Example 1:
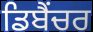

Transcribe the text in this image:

ਡਿਬੈਂਚਰ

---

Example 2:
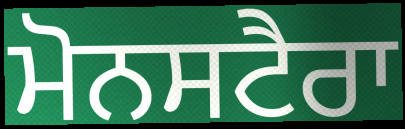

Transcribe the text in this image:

ਮੋਨਸਟੈਰਾ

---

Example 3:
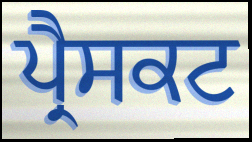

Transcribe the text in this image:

ਪ੍ਰੈਸਕਟ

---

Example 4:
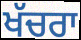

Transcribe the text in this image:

ਖੱਚਰਾ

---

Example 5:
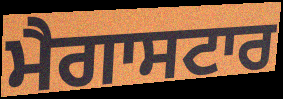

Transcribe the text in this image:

ਮੈਗਾਸਟਾਰ